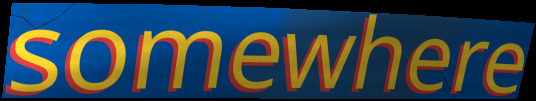
somewhere